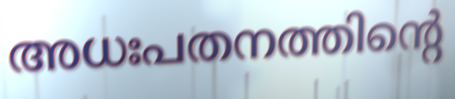
അധഃപതനത്തിന്റെ